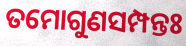
ତମୋଗୁଣସମ୍ପନ୍ତଃ